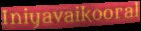
Iniyavaikooral